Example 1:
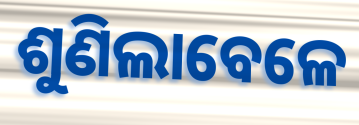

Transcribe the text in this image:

ଶୁଣିଲାବେଳେ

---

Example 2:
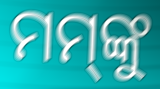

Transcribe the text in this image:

ମମ୍‌ଙ୍କୁ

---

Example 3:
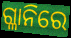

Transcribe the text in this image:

ଗ୍ଳାନିରେ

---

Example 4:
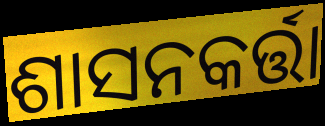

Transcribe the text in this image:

ଶାସନକର୍ତ୍ତା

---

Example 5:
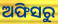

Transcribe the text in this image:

ଅଫିସରୁ